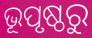
ଭୂପୃଷ୍ଠରୁ